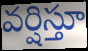
వర్షిస్తూ